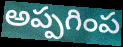
అప్పగింప